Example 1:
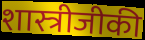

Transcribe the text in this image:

शास्त्रीजीकी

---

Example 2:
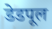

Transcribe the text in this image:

डेडपूल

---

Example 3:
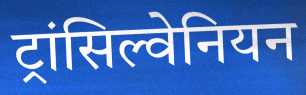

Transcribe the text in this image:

ट्रांसिल्वेनियन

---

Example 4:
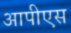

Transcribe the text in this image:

आपीएस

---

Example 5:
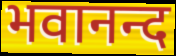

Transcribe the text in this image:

भवानन्द